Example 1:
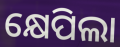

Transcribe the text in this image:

କ୍ଷେପିଲା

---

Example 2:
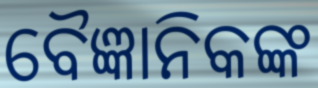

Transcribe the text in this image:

ବୈଜ୍ଞାନିକଙ୍କ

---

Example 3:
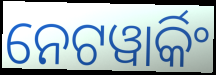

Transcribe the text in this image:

ନେଟୱାର୍କିଂ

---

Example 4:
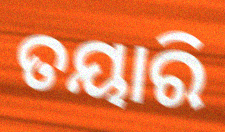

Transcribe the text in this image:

ତୟାରି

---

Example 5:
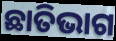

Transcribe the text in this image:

ଛାତିଭାଗ